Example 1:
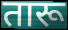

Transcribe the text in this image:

तारू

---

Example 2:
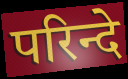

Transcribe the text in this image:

परिन्दे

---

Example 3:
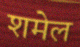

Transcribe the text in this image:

शमेल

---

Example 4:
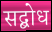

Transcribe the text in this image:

सद्बोध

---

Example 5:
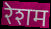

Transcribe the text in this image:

रेशम